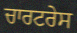
ਚਾਰਟਰੇਸ